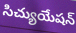
సిచ్యుయేషన్